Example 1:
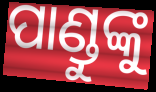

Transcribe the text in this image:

ପାଣ୍ଡୁଙ୍କୁ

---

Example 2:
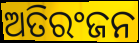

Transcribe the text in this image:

ଅତିରଂଜନ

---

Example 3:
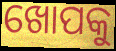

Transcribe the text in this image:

ଖୋପକୁ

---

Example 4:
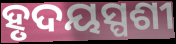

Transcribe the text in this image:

ହୃଦୟସ୍ପଶୀ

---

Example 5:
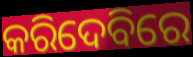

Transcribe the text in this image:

କରିଦେବିରେ